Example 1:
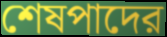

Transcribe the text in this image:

শেষপাদের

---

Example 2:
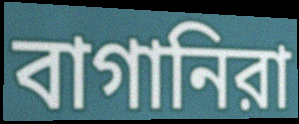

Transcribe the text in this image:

বাগানিরা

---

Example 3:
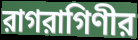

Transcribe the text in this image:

রাগরাগিণীর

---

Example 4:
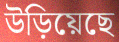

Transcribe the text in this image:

উড়িয়েছে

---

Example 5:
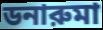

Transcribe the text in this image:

ডনারুমা